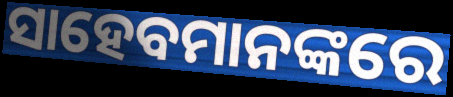
ସାହେବମାନଙ୍କରେ